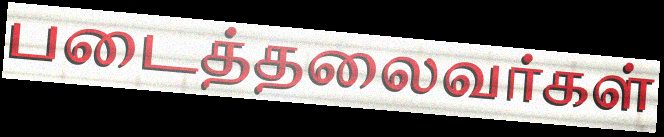
படைத்தலைவர்கள்